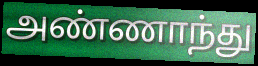
அண்ணாந்து